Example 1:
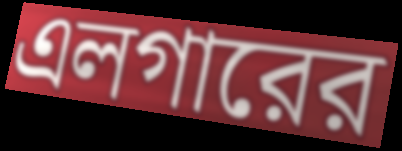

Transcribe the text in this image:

এলগারের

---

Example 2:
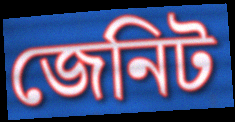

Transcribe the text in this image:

জেনিট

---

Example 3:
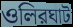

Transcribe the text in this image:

ওলিরঘাট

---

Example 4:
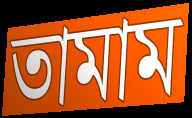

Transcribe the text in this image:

তামাম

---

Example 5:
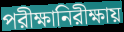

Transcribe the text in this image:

পরীক্ষানিরীক্ষায়